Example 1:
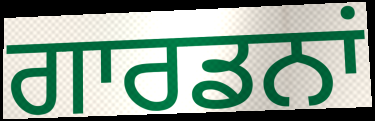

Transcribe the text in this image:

ਗਾਰਡਨਾਂ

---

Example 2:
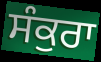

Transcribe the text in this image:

ਸੰਕੁਰਾ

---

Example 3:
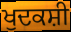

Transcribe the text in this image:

ਖੁਦਕਸ਼ੀ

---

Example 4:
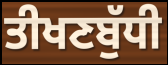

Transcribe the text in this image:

ਤੀਖਣਬੁੱਧੀ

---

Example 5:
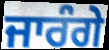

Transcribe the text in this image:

ਜਾਰੰਗੇ